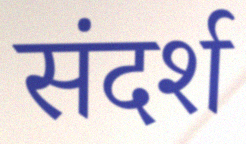
संदर्श